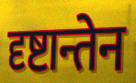
दृष्टान्तेन